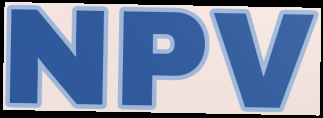
NPV